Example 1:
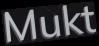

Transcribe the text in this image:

Mukt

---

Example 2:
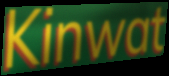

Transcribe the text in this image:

Kinwat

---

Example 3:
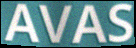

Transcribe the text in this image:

AVAS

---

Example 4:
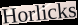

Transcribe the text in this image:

Horlicks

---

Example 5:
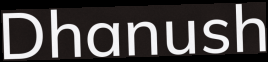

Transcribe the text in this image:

Dhanush